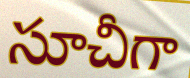
సూచీగా